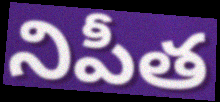
నిపీత